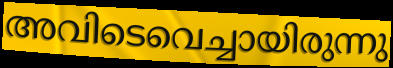
അവിടെവെച്ചായിരുന്നു